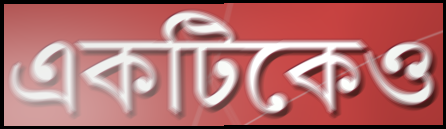
একটিকেও